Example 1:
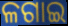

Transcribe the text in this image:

ଳଗାଇ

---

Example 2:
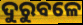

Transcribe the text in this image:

ଦୁରୁବଳେ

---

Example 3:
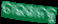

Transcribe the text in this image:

ତାଇୱାନକୁ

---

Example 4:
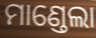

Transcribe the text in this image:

ମାଣ୍ଡେଲା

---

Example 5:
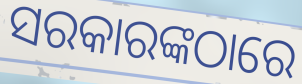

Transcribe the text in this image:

ସରକାରଙ୍କଠାରେ